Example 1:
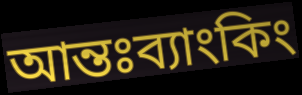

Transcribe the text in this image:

আন্তঃব্যাংকিং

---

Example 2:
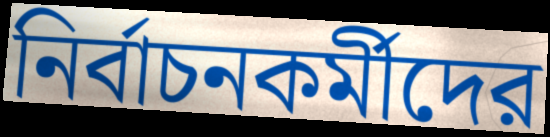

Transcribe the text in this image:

নির্বাচনকর্মীদের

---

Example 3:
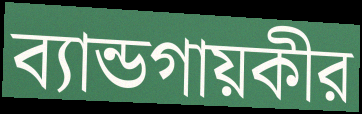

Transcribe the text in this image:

ব্যান্ডগায়কীর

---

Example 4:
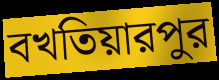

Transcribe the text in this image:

বখতিয়ারপুর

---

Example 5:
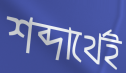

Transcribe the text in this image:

শব্দার্থেই